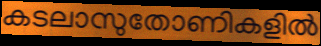
കടലാസുതോണികളിൽ